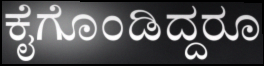
ಕೈಗೊಂಡಿದ್ದರೂ